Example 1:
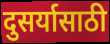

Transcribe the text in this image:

दुसर्यासाठी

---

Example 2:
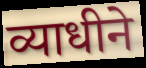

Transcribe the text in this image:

व्याधीने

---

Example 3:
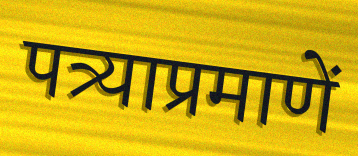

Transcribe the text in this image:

पत्र्याप्रमाणें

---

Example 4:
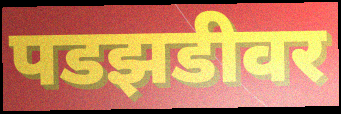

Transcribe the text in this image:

पडझडीवर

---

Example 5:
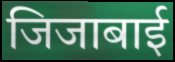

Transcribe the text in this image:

जिजाबाई